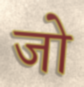
जो